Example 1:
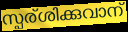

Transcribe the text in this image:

സ്പര്ശിക്കുവാന്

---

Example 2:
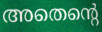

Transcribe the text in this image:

അതെന്റെ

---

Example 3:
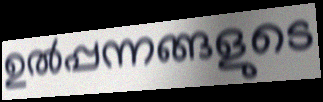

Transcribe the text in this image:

ഉൽപ്പന്നങ്ങളുടെ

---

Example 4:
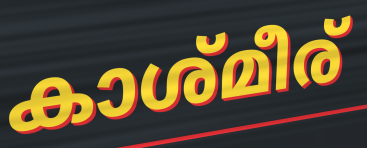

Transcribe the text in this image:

കാശ്മീര്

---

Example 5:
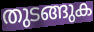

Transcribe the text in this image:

തുടങ്ങുക